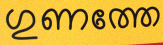
ഗുണത്തേ